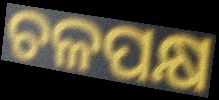
ଚଳପକ୍ଷ